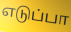
எடுப்பா